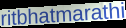
ritbhatmarathi